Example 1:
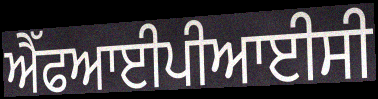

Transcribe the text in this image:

ਐੱਫਆਈਪੀਆਈਸੀ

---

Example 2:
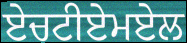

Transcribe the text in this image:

ਏਚਟੀਏਮਏਲ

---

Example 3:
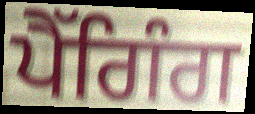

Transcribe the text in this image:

ਪੈੱਗਿੰਗ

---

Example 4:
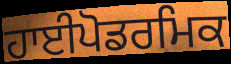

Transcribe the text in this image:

ਹਾਈਪੋਡਰਮਿਕ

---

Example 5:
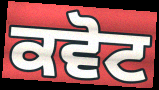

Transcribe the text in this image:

ਕਵੋਟ